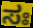
ಸಃ